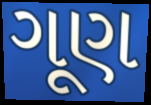
ગૂણ